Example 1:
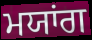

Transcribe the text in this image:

ਮਯਾਂਗ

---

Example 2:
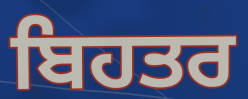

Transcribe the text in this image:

ਬਿਹਤਰ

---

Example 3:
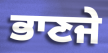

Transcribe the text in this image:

ਭਾਣਜੇ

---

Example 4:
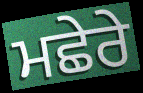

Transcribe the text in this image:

ਮਛੇਰੇ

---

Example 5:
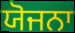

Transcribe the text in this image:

ਯੋਜਨਾ